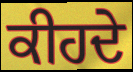
ਕੀਹਦੇ